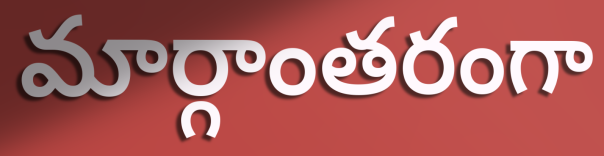
మార్గాంతరంగా